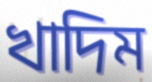
খাদিম